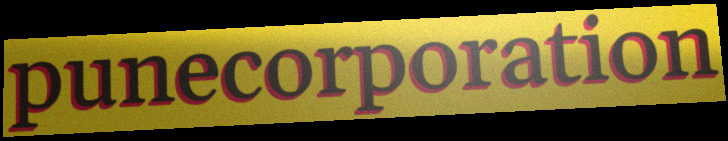
punecorporation